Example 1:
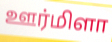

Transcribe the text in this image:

ஊர்மிளா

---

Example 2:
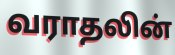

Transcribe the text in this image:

வராதலின்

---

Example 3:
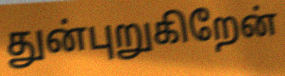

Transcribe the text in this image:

துன்புறுகிறேன்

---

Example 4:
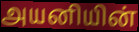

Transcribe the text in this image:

அயனியின்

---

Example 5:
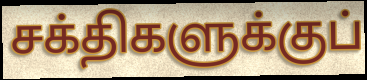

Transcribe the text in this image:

சக்திகளுக்குப்